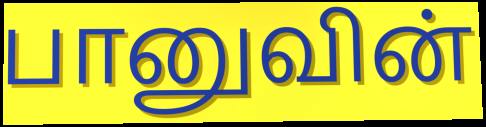
பானுவின்